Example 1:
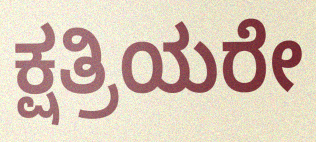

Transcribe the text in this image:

ಕ್ಷತ್ರಿಯರೇ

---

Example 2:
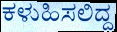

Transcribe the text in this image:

ಕಳುಹಿಸಲಿದ್ದ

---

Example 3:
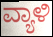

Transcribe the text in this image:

ವ್ಯಾಳಿ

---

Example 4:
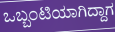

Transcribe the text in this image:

ಒಬ್ಬಂಟಿಯಾಗಿದ್ದಾಗ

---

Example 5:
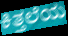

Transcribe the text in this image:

ಕಿತ್ತಲೆಯ